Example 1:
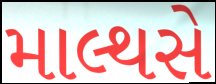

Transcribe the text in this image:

માલ્થસે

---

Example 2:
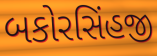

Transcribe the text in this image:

બકોરસિંહજી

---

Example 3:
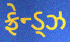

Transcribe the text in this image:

ફ્રેન્ડ્ઝ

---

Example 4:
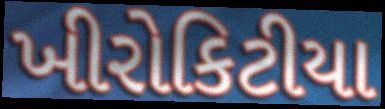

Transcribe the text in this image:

ખીરોકિટીયા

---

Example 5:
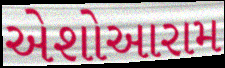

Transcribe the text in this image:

એશોઆરામ